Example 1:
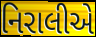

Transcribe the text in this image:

નિરાલીએ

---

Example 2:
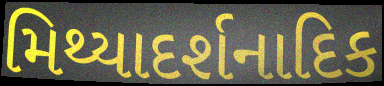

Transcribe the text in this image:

મિથ્યાદર્શનાદિક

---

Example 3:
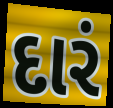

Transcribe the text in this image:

દારં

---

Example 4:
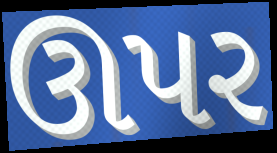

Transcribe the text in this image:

ઊપર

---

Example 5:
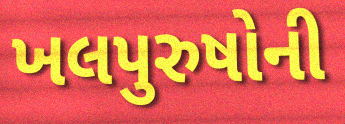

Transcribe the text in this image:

ખલપુરુષોની